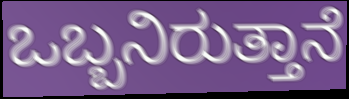
ಒಬ್ಬನಿರುತ್ತಾನೆ